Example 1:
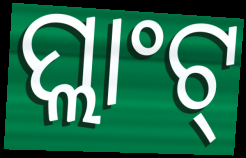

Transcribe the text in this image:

ପ୍ଲାଂଟ୍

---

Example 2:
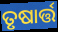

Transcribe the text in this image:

ତୃଷାର୍ତ୍ତ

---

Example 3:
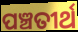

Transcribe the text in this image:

ପଞ୍ଚତୀର୍ଥ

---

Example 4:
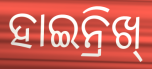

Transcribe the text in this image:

ହାଇନ୍ରିଖ୍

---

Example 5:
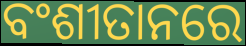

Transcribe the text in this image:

ବଂଶୀତାନରେ